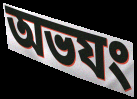
অভযং